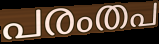
പരംതപ